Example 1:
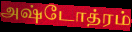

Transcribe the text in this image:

அஷ்டோத்ரம்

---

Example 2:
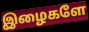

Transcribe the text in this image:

இழைகளே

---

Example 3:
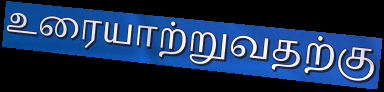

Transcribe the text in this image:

உரையாற்றுவதற்கு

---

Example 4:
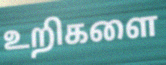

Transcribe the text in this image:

உறிகளை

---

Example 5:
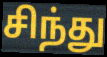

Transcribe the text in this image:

சிந்து